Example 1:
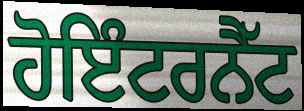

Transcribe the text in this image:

ਹੋਇੰਟਰਨੈੱਟ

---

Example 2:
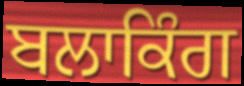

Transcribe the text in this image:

ਬਲਾਕਿੰਗ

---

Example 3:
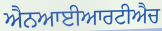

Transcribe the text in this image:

ਐਨਆਈਆਰਟੀਐਚ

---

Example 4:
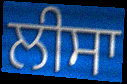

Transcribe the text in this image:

ਲੀਸਾ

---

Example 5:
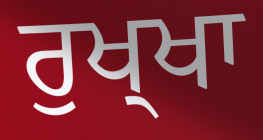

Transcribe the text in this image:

ਰੁਖ੍ਖਾ